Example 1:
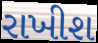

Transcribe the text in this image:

રાખીશ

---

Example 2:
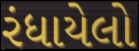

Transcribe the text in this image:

રંધાયેલો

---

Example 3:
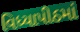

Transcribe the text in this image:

વિધ્યાપીઠમાં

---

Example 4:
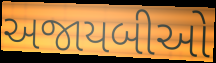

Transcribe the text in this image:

અજાયબીઓ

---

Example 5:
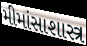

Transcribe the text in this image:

મીમાંસાશાસ્ત્ર